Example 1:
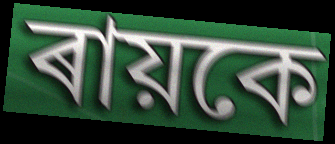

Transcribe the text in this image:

ৰায়কে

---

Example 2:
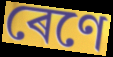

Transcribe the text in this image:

ৰেণে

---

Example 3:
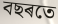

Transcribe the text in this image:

বছৰতে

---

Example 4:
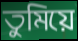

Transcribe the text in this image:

তুমিয়ে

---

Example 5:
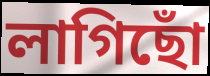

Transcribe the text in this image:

লাগিছোঁ